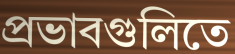
প্রভাবগুলিতে